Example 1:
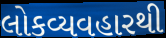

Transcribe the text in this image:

લોકવ્યવહારથી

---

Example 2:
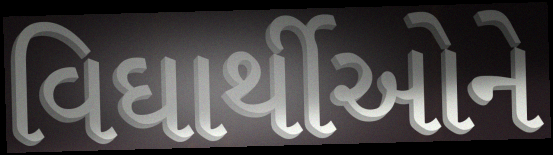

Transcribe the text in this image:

વિઘાર્થીઓને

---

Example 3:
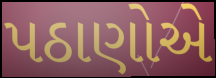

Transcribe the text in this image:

પઠાણોએ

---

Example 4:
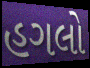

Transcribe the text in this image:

હગલો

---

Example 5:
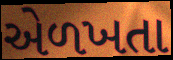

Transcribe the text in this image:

એળખતા